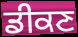
ਡੀਕਣ